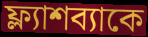
ফ্ল্যাশব্যাকে